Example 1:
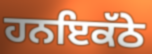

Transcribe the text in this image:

ਹਨਇਕੱਠੇ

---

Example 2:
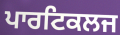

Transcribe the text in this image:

ਪਾਰਟਿਕਲਜ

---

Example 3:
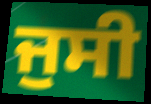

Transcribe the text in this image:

ਜੁਸੀ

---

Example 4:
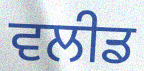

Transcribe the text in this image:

ਵਲੀਡ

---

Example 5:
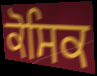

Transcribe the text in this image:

ਕੋਸਿਕ